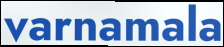
varnamala